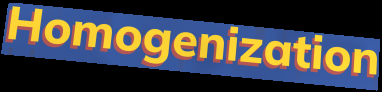
Homogenization